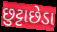
છુટ્ટાછેડા